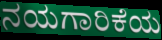
ನಯಗಾರಿಕೆಯ